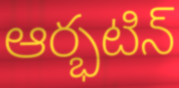
ఆర్భటిన్